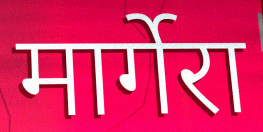
मार्गेरा